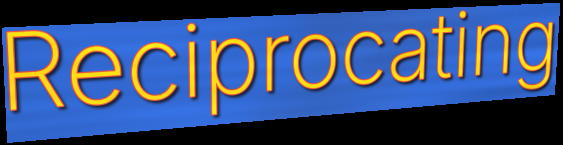
Reciprocating